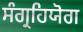
ਸੰਗ੍ਰਹਿਯੋਗ